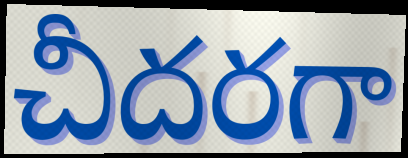
చీదరగా